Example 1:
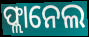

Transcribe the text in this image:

ଫ୍ଲାନେଲ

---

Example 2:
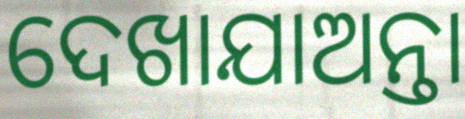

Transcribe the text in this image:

ଦେଖାଯାଅନ୍ତା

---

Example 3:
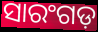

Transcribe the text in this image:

ସାରଂଗଡ଼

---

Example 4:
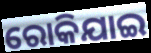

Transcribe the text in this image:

ରୋକିଯାଇ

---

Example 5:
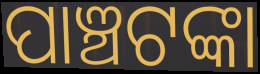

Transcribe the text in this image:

ପାଞ୍ଚଟଙ୍କା